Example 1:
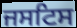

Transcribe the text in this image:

ਜਸਟਿਸ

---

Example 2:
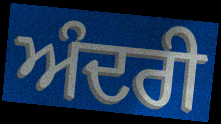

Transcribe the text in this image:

ਅੰਦਰੀ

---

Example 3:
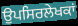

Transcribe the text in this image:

ਉਪਸਿਰਲੇਖਕਾਂ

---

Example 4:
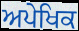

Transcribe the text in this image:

ਅਪੇਖਿਕ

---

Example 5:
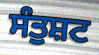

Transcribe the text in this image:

ਸੰਤੁਸ਼ਟ